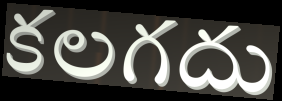
కలగదు